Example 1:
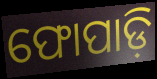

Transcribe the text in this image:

ଫୋପାଡ଼ି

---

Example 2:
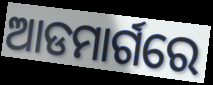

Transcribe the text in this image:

ଆଡମାର୍ଗରେ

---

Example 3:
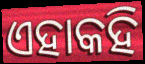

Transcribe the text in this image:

ଏହାକହି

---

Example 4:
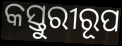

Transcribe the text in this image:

କସ୍ତୁରୀରୂପ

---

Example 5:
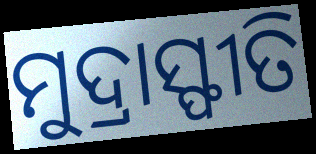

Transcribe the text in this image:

ମୁଦ୍ରାସ୍ଫୀତି